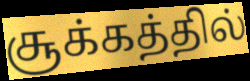
சூக்கத்தில்